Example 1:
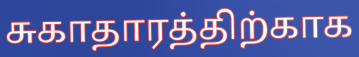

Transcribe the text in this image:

சுகாதாரத்திற்காக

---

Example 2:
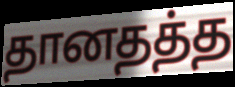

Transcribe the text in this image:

தானதத்த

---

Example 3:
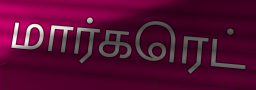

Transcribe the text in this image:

மார்கரெட்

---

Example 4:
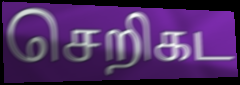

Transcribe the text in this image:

செறிகட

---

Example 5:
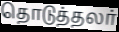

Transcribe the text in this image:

தொடுத்தலர்